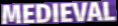
MEDIEVAL